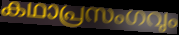
കഥാപ്രസംഗവും